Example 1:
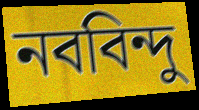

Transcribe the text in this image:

নববিন্দু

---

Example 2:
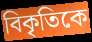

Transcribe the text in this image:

বিকৃতিকে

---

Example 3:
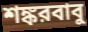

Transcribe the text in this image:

শঙ্করবাবু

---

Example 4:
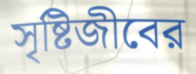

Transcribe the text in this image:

সৃষ্টিজীবের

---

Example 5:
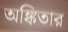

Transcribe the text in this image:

অঙ্কিতার